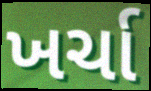
ખર્ચા